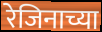
रेजिनाच्या